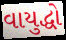
વાયુદ્ધો